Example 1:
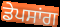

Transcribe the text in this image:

ਡੇਪਸਾਂਗ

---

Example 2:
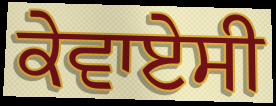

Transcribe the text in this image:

ਕੇਵਾਏਸੀ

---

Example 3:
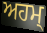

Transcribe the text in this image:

ਅਹਮ੍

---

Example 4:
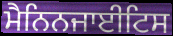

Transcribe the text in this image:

ਮੈਨਿਨਜਾਈਟਿਸ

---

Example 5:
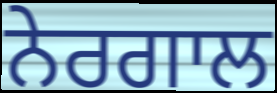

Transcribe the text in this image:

ਨੇਰਗਾਲ